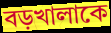
বড়খালাকে